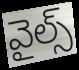
వైల్స్